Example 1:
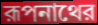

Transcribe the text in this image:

রূপনাথের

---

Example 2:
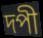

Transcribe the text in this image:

দপী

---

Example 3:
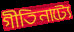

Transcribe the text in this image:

গীতিনাট্যে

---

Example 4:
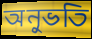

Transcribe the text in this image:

অনুভতি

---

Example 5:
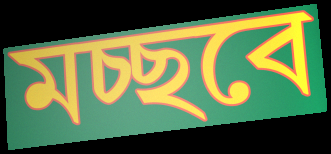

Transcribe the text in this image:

মচ্ছবে